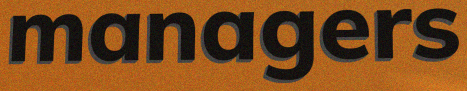
managers